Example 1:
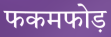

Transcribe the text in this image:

फकमफोड़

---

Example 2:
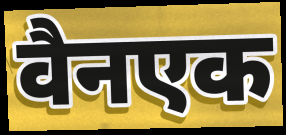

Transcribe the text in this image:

वैनएक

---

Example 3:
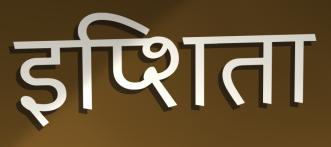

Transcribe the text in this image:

इप्शिता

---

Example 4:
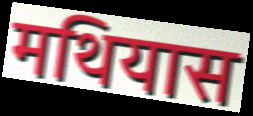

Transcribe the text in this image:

मथियास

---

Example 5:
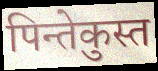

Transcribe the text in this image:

पिन्तेकुस्त